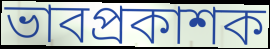
ভাবপ্রকাশক